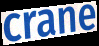
crane